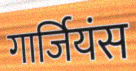
गार्जियंस